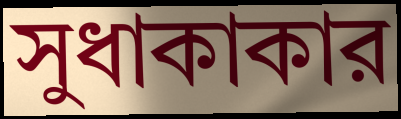
সুধাকাকার